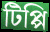
টিপ্পি